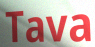
Tava